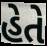
હેતે